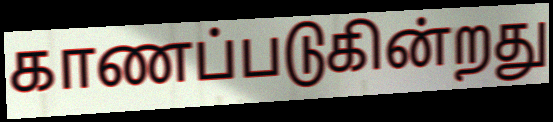
காணப்படுகின்றது